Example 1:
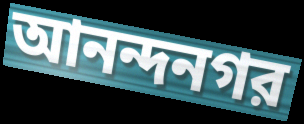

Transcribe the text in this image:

আনন্দনগর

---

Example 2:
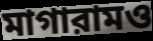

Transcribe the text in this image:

মাগারামও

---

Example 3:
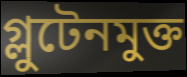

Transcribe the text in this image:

গ্লুটেনমুক্ত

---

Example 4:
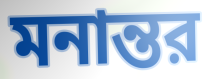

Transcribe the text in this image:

মনান্তর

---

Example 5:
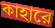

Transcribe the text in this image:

কাহারে